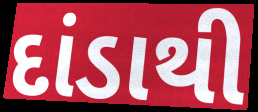
દાંડાથી